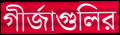
গীর্জাগুলির